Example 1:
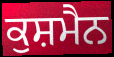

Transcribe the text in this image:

ਕੁਸ਼ਮੈਨ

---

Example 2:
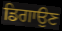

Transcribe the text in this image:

ਡਿਗਾਉਣ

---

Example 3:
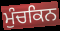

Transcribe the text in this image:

ਮੁੰਚਕਿਨ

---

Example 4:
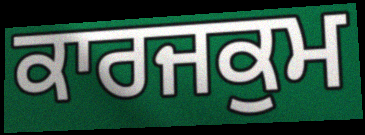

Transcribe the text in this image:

ਕਾਰਜਕੁਮ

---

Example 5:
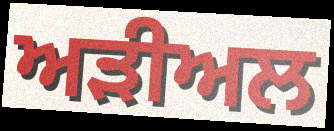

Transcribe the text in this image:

ਅੜੀਅਲ